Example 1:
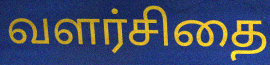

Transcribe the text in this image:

வளர்சிதை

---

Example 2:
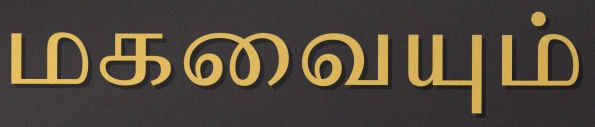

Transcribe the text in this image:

மகவையும்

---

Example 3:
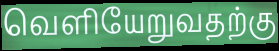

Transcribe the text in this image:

வெளியேறுவதற்கு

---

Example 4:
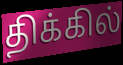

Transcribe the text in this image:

திக்கில்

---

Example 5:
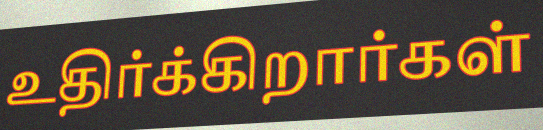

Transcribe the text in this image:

உதிர்க்கிறார்கள்